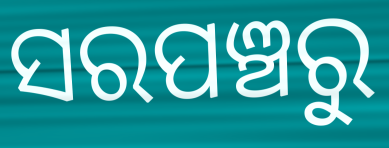
ସରପଞ୍ଚରୁ